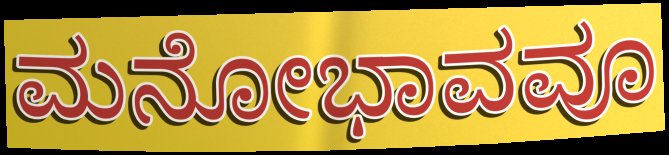
ಮನೋಭಾವವೂ